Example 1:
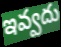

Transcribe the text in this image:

ఇవ్వదు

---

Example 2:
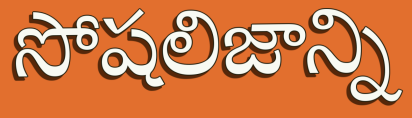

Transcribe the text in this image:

సోషలిజాన్ని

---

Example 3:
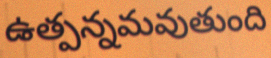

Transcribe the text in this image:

ఉత్పన్నమవుతుంది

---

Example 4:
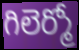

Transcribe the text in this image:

గిలెర్మో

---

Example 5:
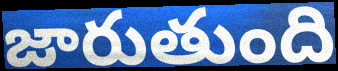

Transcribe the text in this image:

జారుతుంది